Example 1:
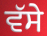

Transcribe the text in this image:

ਵੱਸੇ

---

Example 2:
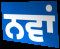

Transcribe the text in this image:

ਨਵਾਂ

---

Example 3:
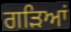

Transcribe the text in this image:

ਗੜਿਆਂ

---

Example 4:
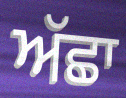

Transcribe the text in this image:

ਅੱਛਾ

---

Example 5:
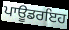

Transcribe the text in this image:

ਪਾਊਡਰਇਹ